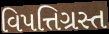
વિપત્તિગ્રસ્ત